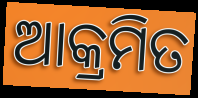
ଆକ୍ରମିତ